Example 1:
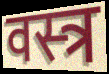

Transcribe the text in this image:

वस्त्र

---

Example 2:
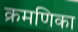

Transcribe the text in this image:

क्रमणिका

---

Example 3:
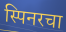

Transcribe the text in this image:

स्पिनरचा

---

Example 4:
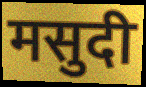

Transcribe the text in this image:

मसुदी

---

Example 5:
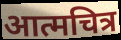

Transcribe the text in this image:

आत्मचित्र